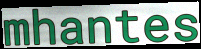
mhantes